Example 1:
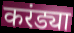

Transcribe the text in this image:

करंड्या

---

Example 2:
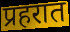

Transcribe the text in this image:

प्रहरात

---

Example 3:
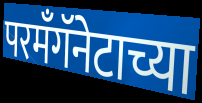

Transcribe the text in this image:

परमँगॅनेटाच्या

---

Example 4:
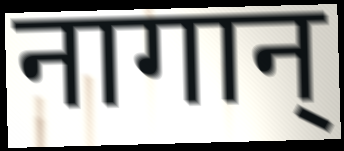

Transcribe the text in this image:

नागान्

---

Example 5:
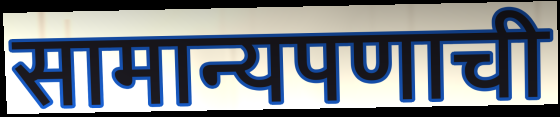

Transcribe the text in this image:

सामान्यपणाची